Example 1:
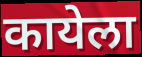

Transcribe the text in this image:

कायेला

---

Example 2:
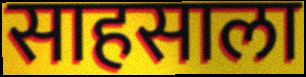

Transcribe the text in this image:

साहसाला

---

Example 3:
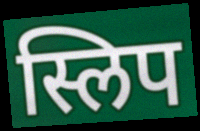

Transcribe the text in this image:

स्लिप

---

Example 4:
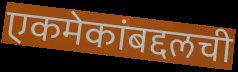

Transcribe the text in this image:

एकमेकांबद्दलची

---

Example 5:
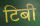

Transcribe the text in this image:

टिबी